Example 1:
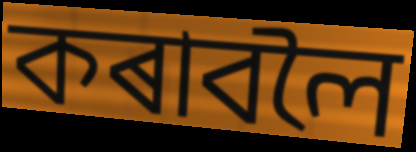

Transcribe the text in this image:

কৰাবলৈ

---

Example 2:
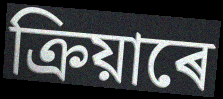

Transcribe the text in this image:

ক্ৰিয়াৰে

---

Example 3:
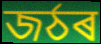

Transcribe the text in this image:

জঠৰ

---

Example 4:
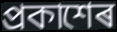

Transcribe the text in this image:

প্ৰকাশেৰ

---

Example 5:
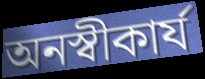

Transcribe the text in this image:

অনস্বীকাৰ্য